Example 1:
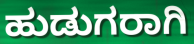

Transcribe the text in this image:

ಹುಡುಗರಾಗಿ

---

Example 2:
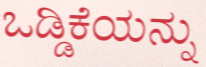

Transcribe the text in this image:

ಒಡ್ಡಿಕೆಯನ್ನು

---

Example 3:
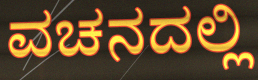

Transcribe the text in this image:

ವಚನದಲ್ಲಿ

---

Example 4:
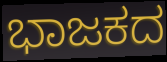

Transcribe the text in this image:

ಭಾಜಕದ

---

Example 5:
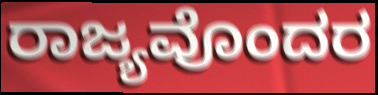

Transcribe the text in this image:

ರಾಜ್ಯವೊಂದರ